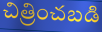
చిత్రించబడి